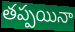
తప్పయినా